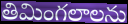
తిమింగలాలను